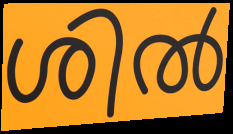
ശിൽ